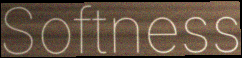
Softness